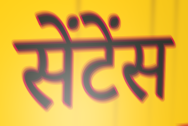
सेंटेंस